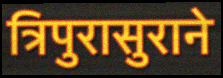
त्रिपुरासुराने